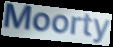
Moorty